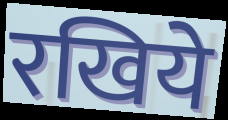
रखिये